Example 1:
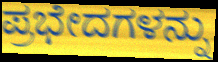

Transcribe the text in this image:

ಪ್ರಭೇದಗಳನ್ನು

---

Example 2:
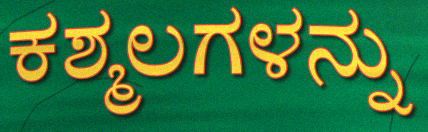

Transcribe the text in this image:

ಕಶ್ಮಲಗಳನ್ನು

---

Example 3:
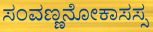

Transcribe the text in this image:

ಸಂವಣ್ಣನೋಕಾಸಸ್ಸ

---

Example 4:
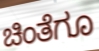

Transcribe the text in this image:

ಚಿಂತೆಗೂ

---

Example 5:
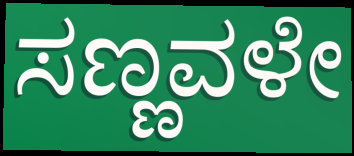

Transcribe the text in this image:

ಸಣ್ಣವಳೇ